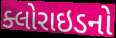
ક્લોરાઇડનો